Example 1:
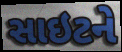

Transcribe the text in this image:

સાઇટને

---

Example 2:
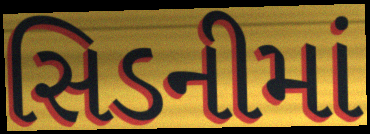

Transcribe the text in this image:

સિડનીમાં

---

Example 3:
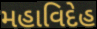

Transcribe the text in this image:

મહાવિદેહ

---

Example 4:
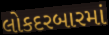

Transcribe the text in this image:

લોકદરબારમાં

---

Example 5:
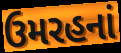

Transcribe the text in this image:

ઉમરહનાં